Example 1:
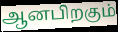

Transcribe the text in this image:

ஆனபிறகும்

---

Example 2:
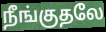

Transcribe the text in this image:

நீங்குதலே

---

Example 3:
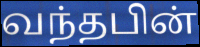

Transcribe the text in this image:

வந்தபின்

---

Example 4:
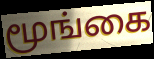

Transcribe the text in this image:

மூங்கை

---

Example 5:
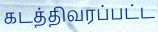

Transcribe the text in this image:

கடத்திவரப்பட்ட